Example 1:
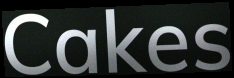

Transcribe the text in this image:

Cakes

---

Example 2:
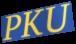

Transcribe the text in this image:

PKU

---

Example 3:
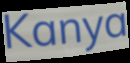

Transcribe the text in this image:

Kanya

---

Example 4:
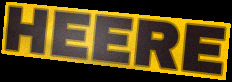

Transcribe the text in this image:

HEERE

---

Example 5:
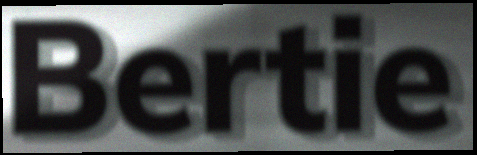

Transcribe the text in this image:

Bertie